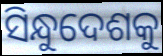
ସିନ୍ଧୁଦେଶକୁ